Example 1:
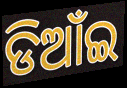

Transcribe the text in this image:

ଡିଆଁଇ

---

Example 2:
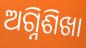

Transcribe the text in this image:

ଅଗ୍ନିଶିଖା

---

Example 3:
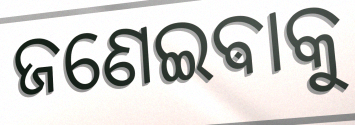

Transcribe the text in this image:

ଜଣେଇଵାକୁ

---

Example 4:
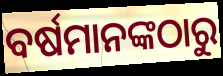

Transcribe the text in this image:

ବର୍ଷମାନଙ୍କଠାରୁ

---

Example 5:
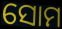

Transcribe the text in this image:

ସୋମ